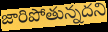
జారిపోతున్నదని